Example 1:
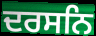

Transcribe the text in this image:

ਦਰਸਨਿ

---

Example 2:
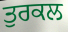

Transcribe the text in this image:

ਤੁਰਕਲ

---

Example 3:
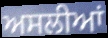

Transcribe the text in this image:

ਅਸਲੀਆਂ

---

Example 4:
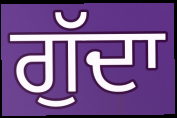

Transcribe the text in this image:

ਗੁੱਦਾ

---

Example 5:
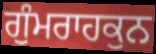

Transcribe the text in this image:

ਗੁੰਮਰਾਹਕੁਨ